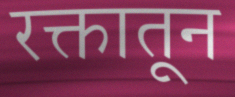
रक्तातून